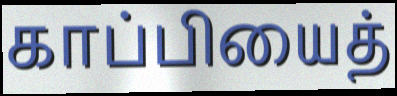
காப்பியைத்